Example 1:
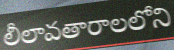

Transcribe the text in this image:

లీలావతారాలలోని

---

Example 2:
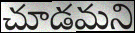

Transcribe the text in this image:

చూడమని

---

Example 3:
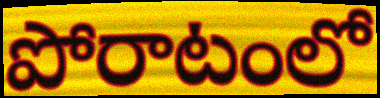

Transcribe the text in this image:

పోరాటంలో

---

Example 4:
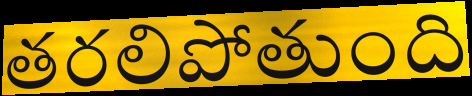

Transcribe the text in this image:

తరలిపోతుంది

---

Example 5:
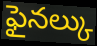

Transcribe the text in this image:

ఫైనల్కు